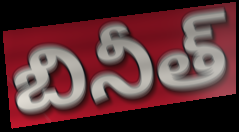
బినీత్